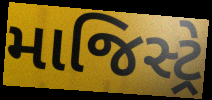
માજિસ્ટ્રે